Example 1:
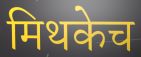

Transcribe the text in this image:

मिथकेच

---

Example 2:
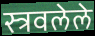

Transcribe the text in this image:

स्त्रवलेले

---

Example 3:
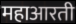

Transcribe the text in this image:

महाआरती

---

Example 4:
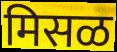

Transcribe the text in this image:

मिसळ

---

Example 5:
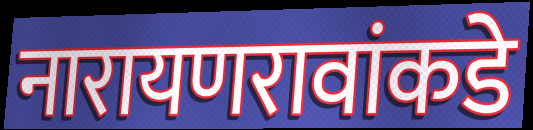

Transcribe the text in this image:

नारायणरावांकडे